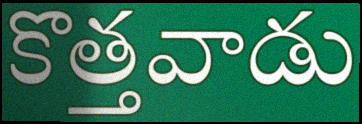
కొత్తవాడు